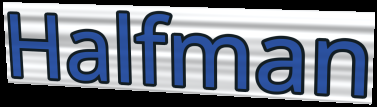
Halfman